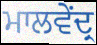
ਮਾਲਵੇਂਦ੍ਰ